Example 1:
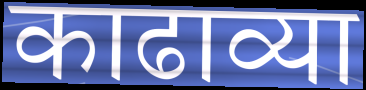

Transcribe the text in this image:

काढाव्या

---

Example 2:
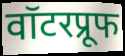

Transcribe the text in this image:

वॉटरप्रूफ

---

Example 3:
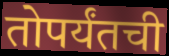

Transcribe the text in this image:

तोपर्यंतची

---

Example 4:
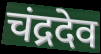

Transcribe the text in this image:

चंद्रदेव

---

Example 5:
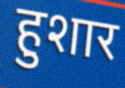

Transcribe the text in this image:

हुशार